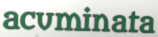
acuminata